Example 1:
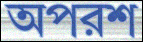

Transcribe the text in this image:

অপরশ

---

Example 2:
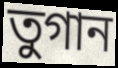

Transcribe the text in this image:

তুগান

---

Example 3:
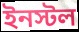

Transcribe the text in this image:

ইনস্টল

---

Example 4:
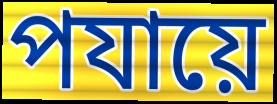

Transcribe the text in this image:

পযায়ে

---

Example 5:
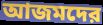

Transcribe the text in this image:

আজমদের